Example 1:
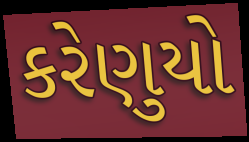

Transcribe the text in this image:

કરેણુયો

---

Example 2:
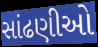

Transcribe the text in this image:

સાંઢણીઓ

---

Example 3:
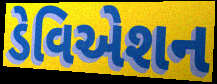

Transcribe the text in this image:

ડેવિએશન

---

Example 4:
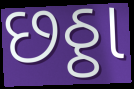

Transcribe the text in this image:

છઠ્ઠા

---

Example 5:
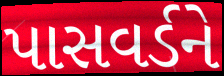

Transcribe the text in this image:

પાસવર્ડને